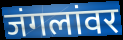
जंगलांवर